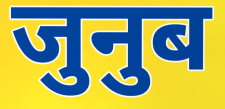
जुनुब